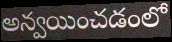
అన్వయించడంలో